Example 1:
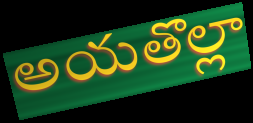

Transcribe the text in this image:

అయతొల్లా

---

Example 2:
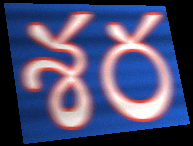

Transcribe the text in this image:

శర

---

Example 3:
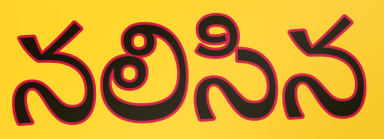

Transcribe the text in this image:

నలిసిన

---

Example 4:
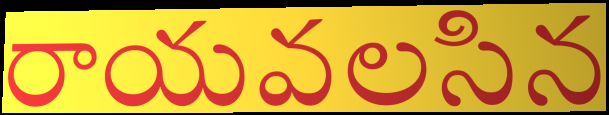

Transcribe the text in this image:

రాయవలసిన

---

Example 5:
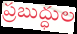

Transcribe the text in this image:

ప్రబుద్ధుల